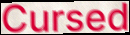
Cursed